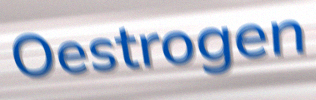
Oestrogen